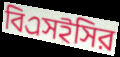
বিএসইসির